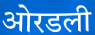
ओरडली